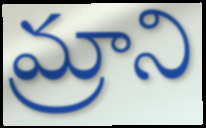
మ్రాని